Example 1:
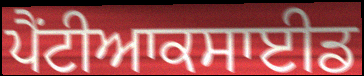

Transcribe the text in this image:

ਪੈਂਟੀਆਕਸਾਈਡ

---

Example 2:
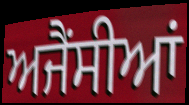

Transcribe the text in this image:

ਅਜੈਂਸੀਆਂ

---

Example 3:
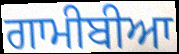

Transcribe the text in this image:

ਗਾਮੀਬੀਆ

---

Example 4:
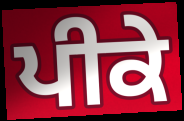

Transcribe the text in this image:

ਪੀਕੇ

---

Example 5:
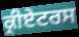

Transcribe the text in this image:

ਕ੍ਰੀਏਟਰਸ